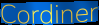
Cordiner